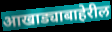
आखाड्याबाहेरील